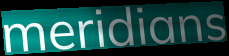
meridians